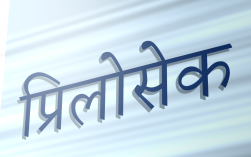
प्रिलोसेक